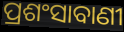
ପ୍ରଶଂସାବାଣୀ